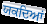
ਯਕਦਿਆਂ